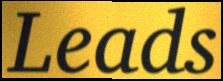
Leads